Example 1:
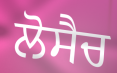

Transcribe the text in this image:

ਲੋਸੈਚ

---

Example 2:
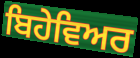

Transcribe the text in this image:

ਬਿਹੇਵਿਅਰ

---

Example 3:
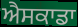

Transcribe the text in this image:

ਐਸਕਾਡਾ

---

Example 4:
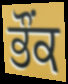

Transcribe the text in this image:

ਭੌਂਕ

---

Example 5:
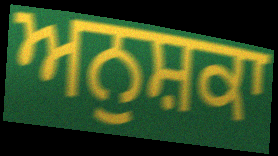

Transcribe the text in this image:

ਅਨੁਸ਼ਕਾ